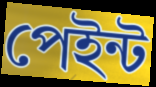
পেইন্ট